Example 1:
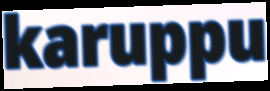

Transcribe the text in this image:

karuppu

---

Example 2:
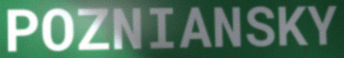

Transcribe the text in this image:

POZNIANSKY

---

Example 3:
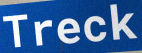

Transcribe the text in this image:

Treck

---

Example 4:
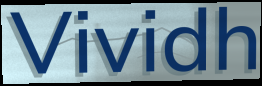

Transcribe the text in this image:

Vividh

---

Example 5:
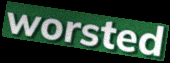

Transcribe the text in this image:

worsted